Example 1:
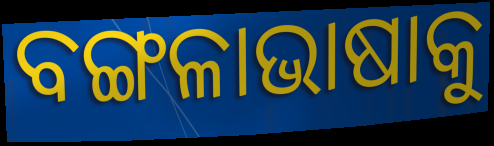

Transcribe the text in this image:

ବଙ୍ଗଳାଭାଷାକୁ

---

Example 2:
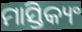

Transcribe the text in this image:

ମାସ୍ତିକ୍ୟଂ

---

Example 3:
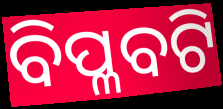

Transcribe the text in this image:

ବିପ୍ଳବଟି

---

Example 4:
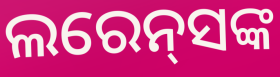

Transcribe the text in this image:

ଲରେନ୍‌ସଙ୍କ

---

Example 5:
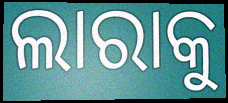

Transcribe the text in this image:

ଲାରାକୁ